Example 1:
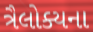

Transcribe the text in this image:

ત્રૈલોક્યના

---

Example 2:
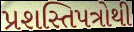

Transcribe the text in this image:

પ્રશસ્તિપત્રોથી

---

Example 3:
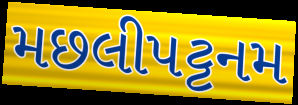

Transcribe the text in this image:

મછલીપટ્ટનમ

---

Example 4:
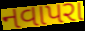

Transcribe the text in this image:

નવાપરા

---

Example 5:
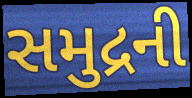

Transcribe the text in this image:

સમુદ્રની